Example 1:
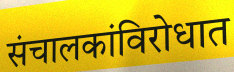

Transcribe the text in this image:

संचालकांविरोधात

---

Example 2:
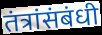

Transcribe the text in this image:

तंत्रांसंबंधी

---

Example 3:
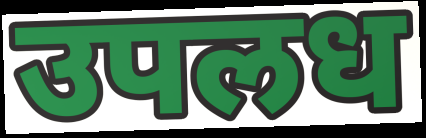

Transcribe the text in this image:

उपलध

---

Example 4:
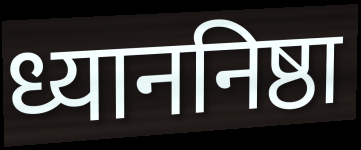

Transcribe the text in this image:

ध्याननिष्ठा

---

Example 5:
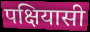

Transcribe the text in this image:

पक्षियासी